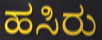
ಹಸಿರು